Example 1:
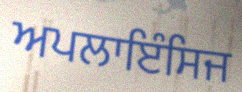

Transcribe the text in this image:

ਅਪਲਾਇੰਸਿਜ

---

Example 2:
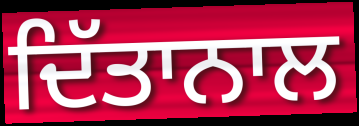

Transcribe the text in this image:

ਦਿੱਤਾਨਾਲ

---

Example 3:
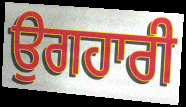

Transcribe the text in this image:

ਉਗਹਾਰੀ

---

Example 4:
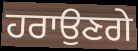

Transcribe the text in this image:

ਹਰਾਉਣਗੇ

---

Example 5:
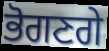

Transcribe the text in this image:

ਭੋਗਣਗੇ